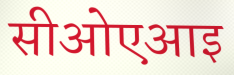
सीओएआइ